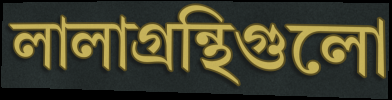
লালাগ্রন্থিগুলো